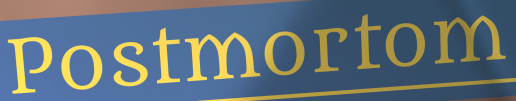
Postmortom